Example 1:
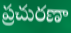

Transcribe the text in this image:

ప్రచురణా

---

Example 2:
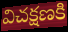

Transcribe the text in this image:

విచక్షణకి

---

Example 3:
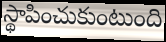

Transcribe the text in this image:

స్థాపించుకుంటుంది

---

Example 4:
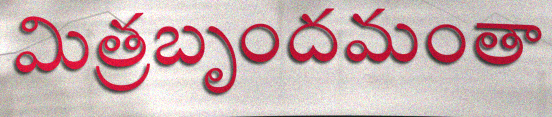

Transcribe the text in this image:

మిత్రబృందమంతా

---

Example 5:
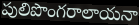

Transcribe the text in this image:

పులిపొంగరాలాయనా